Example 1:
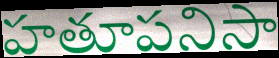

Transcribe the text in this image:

హతూపనిసా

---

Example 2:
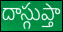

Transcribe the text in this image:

దాస్గుప్తా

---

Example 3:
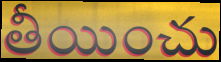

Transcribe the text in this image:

తీయించు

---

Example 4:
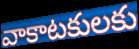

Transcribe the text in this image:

వాకాటకులకు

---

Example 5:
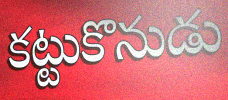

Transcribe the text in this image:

కట్టుకొనుడు